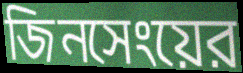
জিনসেংয়ের